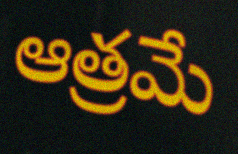
ఆత్రమే